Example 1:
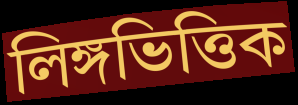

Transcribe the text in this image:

লিঙ্গভিত্তিক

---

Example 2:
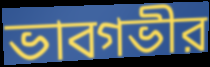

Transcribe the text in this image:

ভাবগভীর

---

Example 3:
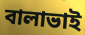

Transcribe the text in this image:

বালাভাই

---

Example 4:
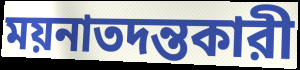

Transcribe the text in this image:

ময়নাতদন্তকারী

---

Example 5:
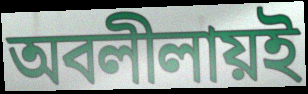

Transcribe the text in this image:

অবলীলায়ই